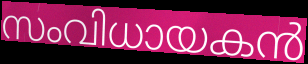
സംവിധായകൻ